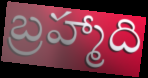
బ్రహ్మాది